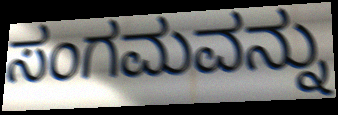
ಸಂಗಮವನ್ನು